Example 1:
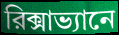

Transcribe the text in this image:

রিক্সাভ্যানে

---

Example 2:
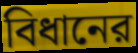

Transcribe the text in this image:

বিধানের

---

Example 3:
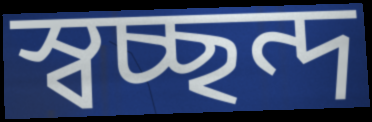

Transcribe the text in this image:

স্বচ্ছন্দ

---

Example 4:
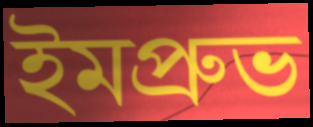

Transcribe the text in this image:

ইমপ্রুভ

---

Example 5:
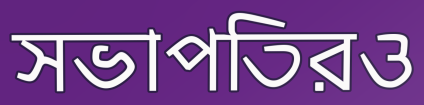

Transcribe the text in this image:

সভাপতিরও